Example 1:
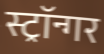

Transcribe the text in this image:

स्ट्रॉन्गर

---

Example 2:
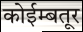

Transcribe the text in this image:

कोईम्बतूर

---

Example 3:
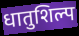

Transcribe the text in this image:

धातुशिल्प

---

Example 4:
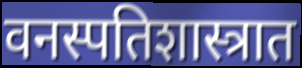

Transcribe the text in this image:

वनस्पतिशास्त्रात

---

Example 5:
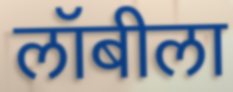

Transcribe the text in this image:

लॉबीला